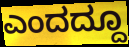
ಎಂದದ್ದೂ